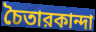
চৈতারকান্দা